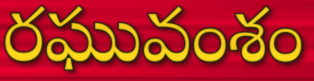
రఘువంశం